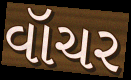
વૉચર